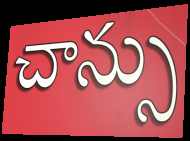
చాన్సు